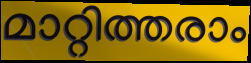
മാറ്റിത്തരാം